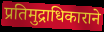
प्रतिमुद्राधिकाराने